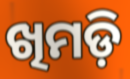
ଖିମଡ଼ି